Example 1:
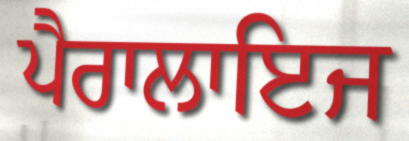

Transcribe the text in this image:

ਪੈਰਾਲਾਇਜ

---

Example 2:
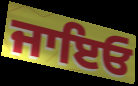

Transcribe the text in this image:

ਜਾਇਓ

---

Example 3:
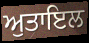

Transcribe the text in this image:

ਅੁਤਾਇਲ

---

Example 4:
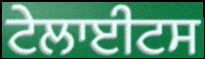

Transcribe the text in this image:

ਟੇਲਾਈਟਸ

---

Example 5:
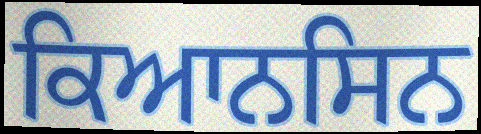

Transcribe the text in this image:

ਕਿਆਨਸਿਨ